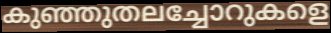
കുഞ്ഞുതലച്ചോറുകളെ